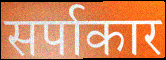
सर्पाकार